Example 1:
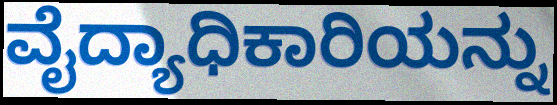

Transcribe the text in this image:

ವೈದ್ಯಾಧಿಕಾರಿಯನ್ನು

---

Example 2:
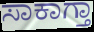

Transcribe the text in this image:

ಸಾಕಾಗ್ತಾ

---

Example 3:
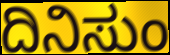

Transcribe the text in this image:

ದಿನಿಸುಂ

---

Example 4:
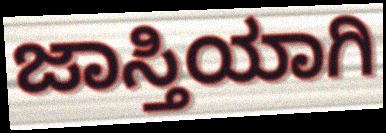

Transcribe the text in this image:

ಜಾಸ್ತಿಯಾಗಿ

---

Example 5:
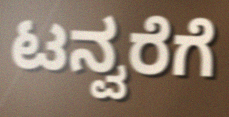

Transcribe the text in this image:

ಟನ್ವರೆಗೆ